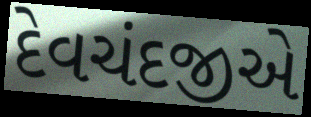
દેવચંદજીએ